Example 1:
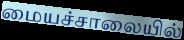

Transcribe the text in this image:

மையச்சாலையில்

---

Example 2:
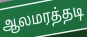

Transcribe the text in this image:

ஆலமரத்தடி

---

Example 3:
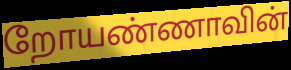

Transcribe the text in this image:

றோயண்ணாவின்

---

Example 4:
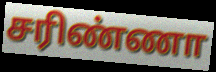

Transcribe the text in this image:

சரிண்ணா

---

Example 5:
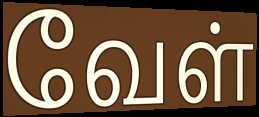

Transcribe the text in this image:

வேள்